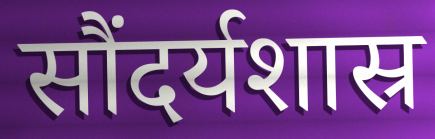
सौंदर्यशास्र